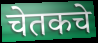
चेतकचे